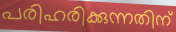
പരിഹരിക്കുന്നതിന്